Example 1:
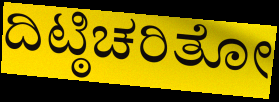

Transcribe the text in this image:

ದಿಟ್ಠಿಚರಿತೋ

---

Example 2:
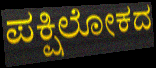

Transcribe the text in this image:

ಪಕ್ಷಿಲೋಕದ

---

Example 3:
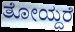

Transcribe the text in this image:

ತೋಯ್ದರೆ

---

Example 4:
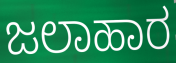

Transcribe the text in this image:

ಜಲಾಹಾರ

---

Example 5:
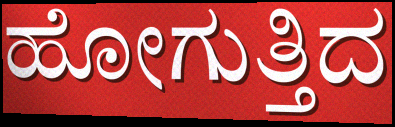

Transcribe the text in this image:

ಹೋಗುತ್ತಿದ